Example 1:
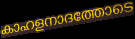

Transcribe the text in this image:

കാഹളനാദത്തോടെ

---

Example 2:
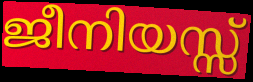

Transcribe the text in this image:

ജീനിയസ്സ്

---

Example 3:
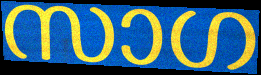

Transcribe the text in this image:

സാഗ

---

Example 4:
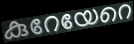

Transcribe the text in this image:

കുറേയേറെ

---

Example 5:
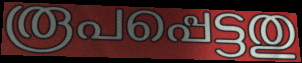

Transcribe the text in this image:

രൂപപ്പെട്ടതു